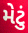
મેટું